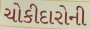
ચોકીદારોની